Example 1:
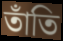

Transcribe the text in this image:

তাঁতি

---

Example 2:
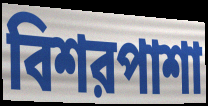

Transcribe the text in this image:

বিশরপাশা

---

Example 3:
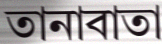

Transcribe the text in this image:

তানাবাতা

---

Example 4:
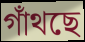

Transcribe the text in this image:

গাঁথছে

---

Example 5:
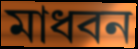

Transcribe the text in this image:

মাধবন